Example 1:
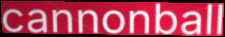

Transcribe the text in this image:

cannonball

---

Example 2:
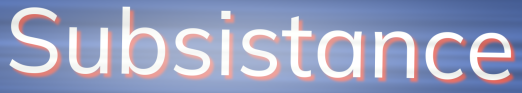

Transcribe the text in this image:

Subsistance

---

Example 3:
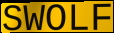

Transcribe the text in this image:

SWOLF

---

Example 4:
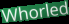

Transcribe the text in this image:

Whorled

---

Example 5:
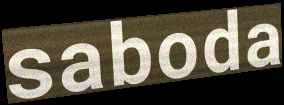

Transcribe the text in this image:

saboda